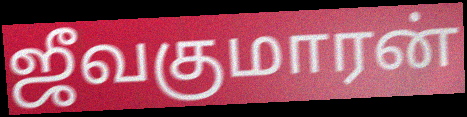
ஜீவகுமாரன்